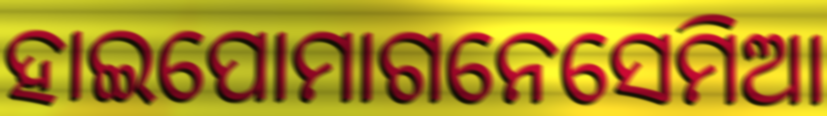
ହାଇପୋମାଗନେସେମିଆ